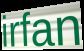
irfan